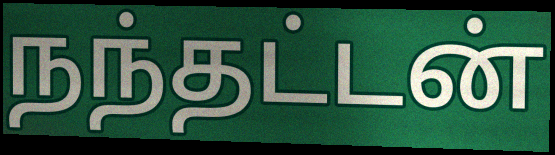
நந்தட்டன்